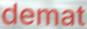
demat